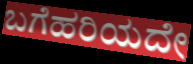
ಬಗೆಹರಿಯದೇ